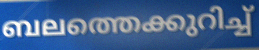
ബലത്തെക്കുറിച്ച്